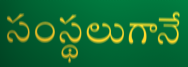
సంస్థలుగానే